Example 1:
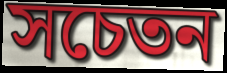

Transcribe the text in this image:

সচেতন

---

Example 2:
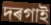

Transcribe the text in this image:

দৰগাই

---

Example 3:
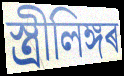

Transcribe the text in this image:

স্ত্ৰীলিঙ্গৰ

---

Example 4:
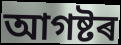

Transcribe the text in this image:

আগষ্টৰ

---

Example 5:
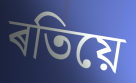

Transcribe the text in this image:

ৰতিয়ে